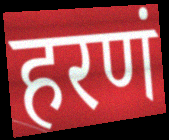
हरणं